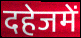
दहेजमें